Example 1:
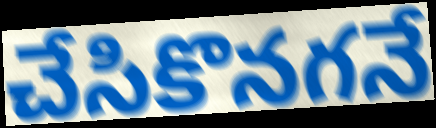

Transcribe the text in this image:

చేసికొనగనే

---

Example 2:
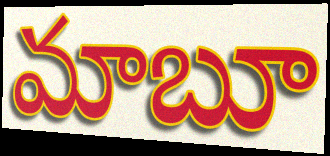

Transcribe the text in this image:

మాబూ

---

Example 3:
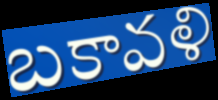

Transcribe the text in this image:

బకావళి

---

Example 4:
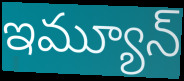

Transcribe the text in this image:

ఇమ్యూన్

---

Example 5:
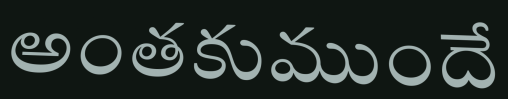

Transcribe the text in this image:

అంతకుముందే